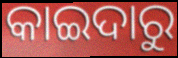
କାଇଦାରୁ